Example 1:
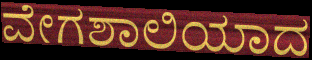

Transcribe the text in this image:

ವೇಗಶಾಲಿಯಾದ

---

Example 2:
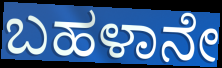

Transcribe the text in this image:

ಬಹಳಾನೇ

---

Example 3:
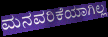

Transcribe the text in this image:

ಮನವರಿಕೆಯಾಗಿಲ್ಲ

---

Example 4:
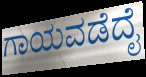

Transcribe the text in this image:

ಗಾಯವಡೆದೈ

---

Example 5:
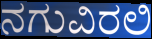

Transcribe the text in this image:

ನಗುವಿರಲಿ